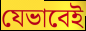
যেভাবেই